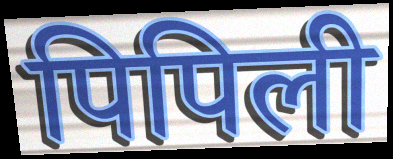
पिपिली